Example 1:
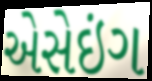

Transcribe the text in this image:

એસેઇંગ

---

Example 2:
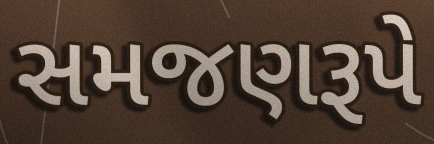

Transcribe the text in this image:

સમજણરૂપે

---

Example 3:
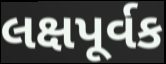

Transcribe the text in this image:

લક્ષપૂર્વક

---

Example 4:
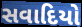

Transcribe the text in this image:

સવાદિયો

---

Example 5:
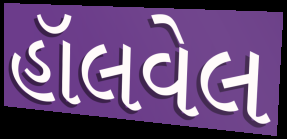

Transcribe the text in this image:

હૉલવેલ